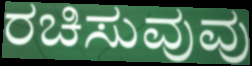
ರಚಿಸುವುವು